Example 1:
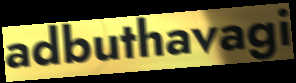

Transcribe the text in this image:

adbuthavagi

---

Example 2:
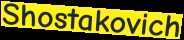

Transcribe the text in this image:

Shostakovich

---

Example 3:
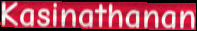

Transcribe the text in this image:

Kasinathanan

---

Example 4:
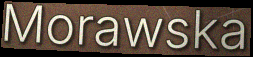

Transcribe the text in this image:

Morawska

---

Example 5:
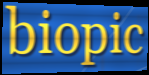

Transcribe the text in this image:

biopic